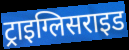
ट्राइग्लिसराइड